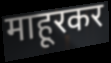
माहूरकर